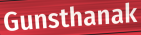
Gunsthanak